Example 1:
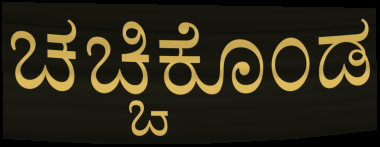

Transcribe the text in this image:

ಚಚ್ಚಿಕೊಂಡ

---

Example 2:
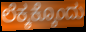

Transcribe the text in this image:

ಲೆಕ್ಕಕ್ಕೊಂದು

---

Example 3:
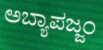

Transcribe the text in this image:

ಅಬ್ಯಾಪಜ್ಜಂ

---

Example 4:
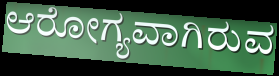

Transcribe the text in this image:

ಆರೋಗ್ಯವಾಗಿರುವ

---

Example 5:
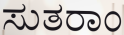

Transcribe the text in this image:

ಸುತರಾಂ